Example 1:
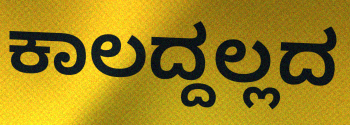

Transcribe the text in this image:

ಕಾಲದ್ದಲ್ಲದ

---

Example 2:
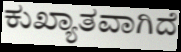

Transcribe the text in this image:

ಕುಖ್ಯಾತವಾಗಿದೆ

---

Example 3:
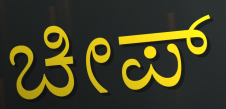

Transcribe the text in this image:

ಚೀಪ್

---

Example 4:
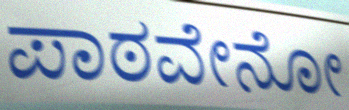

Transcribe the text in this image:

ಪಾಠವೇನೋ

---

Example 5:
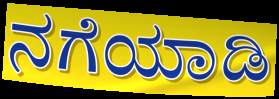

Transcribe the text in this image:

ನಗೆಯಾಡಿ